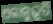
ଏକାନୁଭୂତି